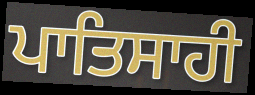
ਪਾਤਿਸਾਹੀ